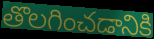
తొలగించడానికి